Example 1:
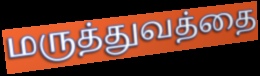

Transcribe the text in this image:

மருத்துவத்தை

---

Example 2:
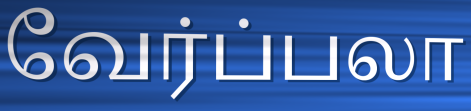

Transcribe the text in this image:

வேர்ப்பலா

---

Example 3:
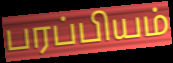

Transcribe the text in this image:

பரப்பியம்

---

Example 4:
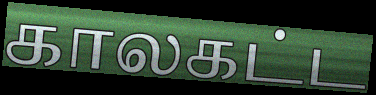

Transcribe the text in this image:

காலகட்ட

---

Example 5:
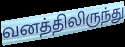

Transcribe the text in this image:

வனத்திலிருந்து